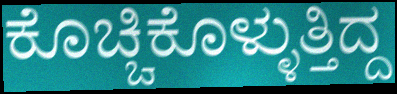
ಕೊಚ್ಚಿಕೊಳ್ಳುತ್ತಿದ್ದ